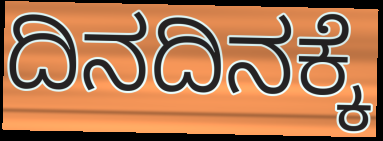
ದಿನದಿನಕ್ಕೆ